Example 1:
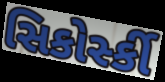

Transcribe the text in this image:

સિકોર્સ્કી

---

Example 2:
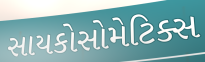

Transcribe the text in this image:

સાયકોસોમેટિક્સ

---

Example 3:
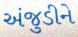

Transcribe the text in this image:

અંજુડીને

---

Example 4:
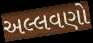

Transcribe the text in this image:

અલ્લવણો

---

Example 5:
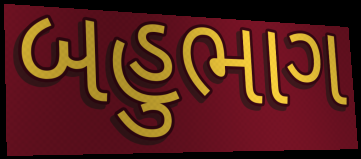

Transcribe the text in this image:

બહુભાગ